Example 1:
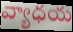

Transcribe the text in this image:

వ్యాధయ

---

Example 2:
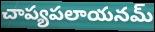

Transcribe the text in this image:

చాప్యపలాయనమ్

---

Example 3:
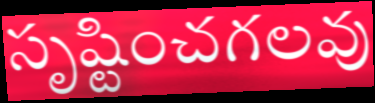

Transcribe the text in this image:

సృష్టించగలవు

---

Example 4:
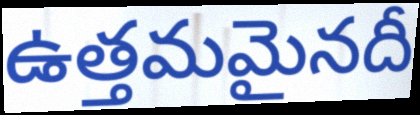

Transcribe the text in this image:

ఉత్తమమైనదీ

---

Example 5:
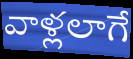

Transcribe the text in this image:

వాళ్లలాగే